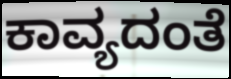
ಕಾವ್ಯದಂತೆ